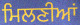
ਮਿਲਣੀਆਂ